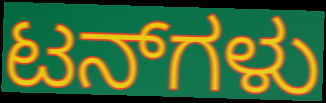
ಟನ್‌ಗಳು